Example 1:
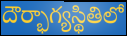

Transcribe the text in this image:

దౌర్భాగ్యస్థితిలో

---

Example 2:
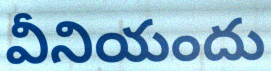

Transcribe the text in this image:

వీనియందు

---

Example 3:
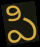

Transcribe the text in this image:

పి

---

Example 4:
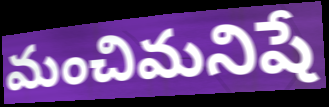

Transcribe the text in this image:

మంచిమనిషే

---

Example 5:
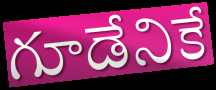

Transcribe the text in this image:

గూడేనికే